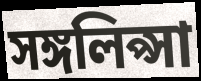
সঙ্গলিপ্সা